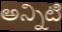
అన్నిటి